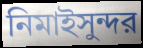
নিমাইসুন্দর